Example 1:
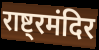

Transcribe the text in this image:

राष्ट्रमंदिर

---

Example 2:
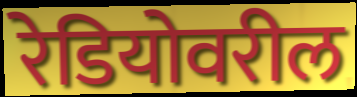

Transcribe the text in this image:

रेडियोवरील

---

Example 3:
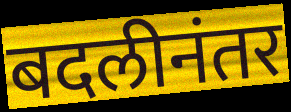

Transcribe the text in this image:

बदलीनंतर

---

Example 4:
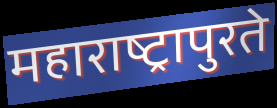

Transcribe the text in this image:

महाराष्ट्रापुरते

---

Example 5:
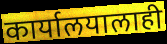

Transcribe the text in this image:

कार्यालयालाही